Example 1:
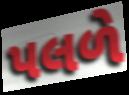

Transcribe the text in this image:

પલળે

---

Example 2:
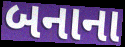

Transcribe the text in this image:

બનાના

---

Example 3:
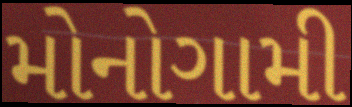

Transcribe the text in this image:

મોનોગામી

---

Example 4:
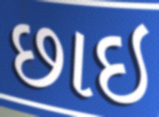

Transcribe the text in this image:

છાઇ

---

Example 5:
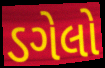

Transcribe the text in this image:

ડગેલો